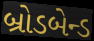
બ્રોડબેન્ડ